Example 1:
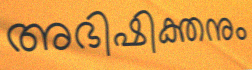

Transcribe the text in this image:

അഭിഷിക്തനും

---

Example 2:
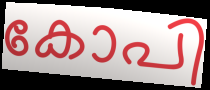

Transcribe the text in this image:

കോപി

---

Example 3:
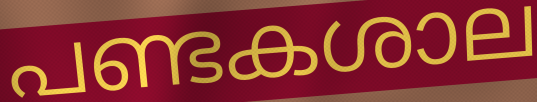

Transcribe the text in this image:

പണ്ടകശാല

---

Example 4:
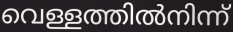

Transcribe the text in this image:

വെള്ളത്തിൽനിന്ന്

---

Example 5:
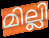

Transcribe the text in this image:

മില്ലി